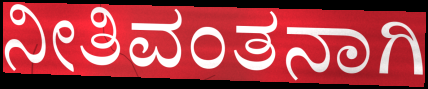
ನೀತಿವಂತನಾಗಿ